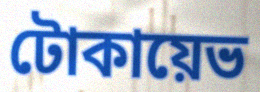
টোকায়েভ